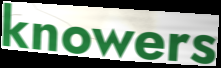
knowers